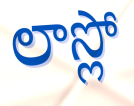
లాస్లో